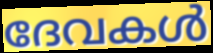
ദേവകൾ